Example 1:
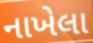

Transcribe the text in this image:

નાખેલા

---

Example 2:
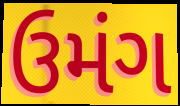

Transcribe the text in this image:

ઉમંગ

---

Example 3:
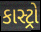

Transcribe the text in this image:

કાસ્ટ્રો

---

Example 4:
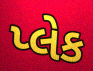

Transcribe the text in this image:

પ્લેક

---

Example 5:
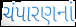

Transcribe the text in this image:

ચંપારણનાં